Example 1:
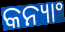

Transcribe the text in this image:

କନ୍ୟାଂ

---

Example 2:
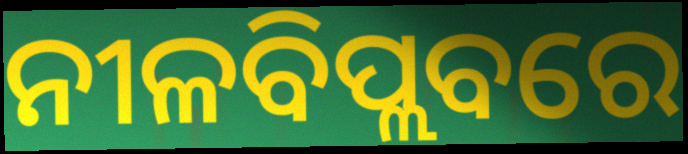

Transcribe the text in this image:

ନୀଳବିପ୍ଲବରେ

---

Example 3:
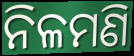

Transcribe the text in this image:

ନିଳମଣି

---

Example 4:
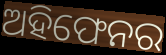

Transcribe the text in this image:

ଅହିଫେନର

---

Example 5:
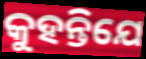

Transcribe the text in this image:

କୁହନ୍ତିଯେ